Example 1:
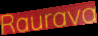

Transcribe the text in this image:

Raurava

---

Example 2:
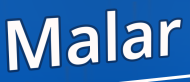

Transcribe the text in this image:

Malar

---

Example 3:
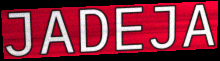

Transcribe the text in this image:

JADEJA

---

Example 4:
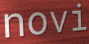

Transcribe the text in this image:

novi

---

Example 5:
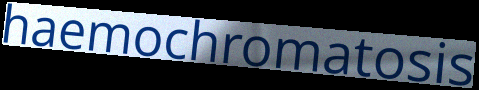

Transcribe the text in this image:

haemochromatosis